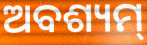
ଅବଶ୍ୟମ୍